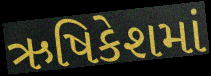
ઋષિકેશમાં